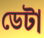
ডেটা